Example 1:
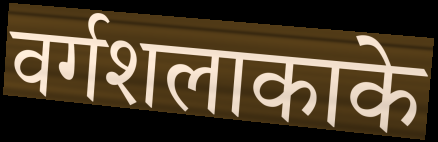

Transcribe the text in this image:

वर्गशलाकाके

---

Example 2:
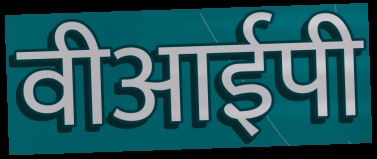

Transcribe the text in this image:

वीआईपी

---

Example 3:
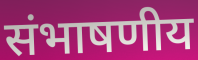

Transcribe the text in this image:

संभाषणीय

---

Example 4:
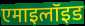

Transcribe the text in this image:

एमाइलॉइड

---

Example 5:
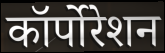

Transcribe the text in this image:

कॉर्पोरेशन